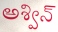
అశ్విన్